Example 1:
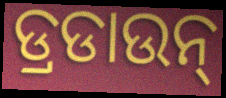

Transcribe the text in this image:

ଡ୍ରଡାଉନ୍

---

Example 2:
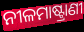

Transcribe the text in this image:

ନୀଳମାଷ୍ଟ୍ରାଣୀ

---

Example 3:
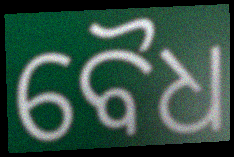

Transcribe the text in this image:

ବୈଧ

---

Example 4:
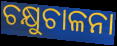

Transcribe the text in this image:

ଚକ୍ଷୁଚାଳନା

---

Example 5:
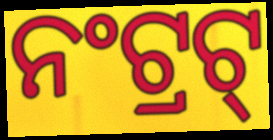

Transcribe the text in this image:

ନଂଟ୍ରଟ୍